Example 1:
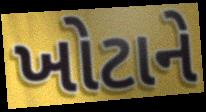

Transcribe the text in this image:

ખોટાને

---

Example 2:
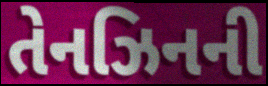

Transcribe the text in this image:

તેનઝિનની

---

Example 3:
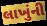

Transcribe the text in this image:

લાખુંની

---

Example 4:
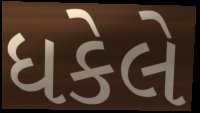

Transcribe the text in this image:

ધકેલે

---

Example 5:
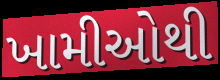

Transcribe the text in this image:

ખામીઓથી